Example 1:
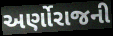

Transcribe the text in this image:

અર્ણોરાજની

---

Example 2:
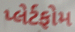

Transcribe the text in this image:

પ્લેર્ટફોમ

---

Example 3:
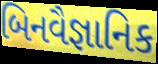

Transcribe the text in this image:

બિનવૈજ્ઞાનિક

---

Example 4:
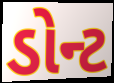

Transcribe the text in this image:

ડોન્ટ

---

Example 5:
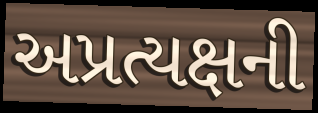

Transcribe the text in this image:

અપ્રત્યક્ષની